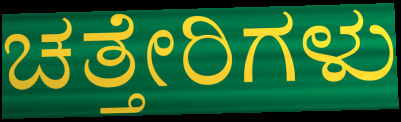
ಚತ್ತೇರಿಗಳು